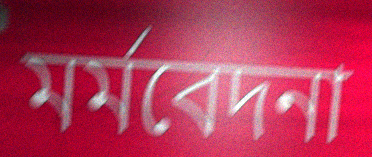
মর্মবেদনা